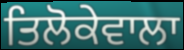
ਤਿਲੋਕੇਵਾਲਾ